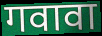
गवावा